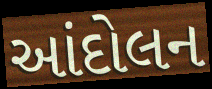
આંદોલન